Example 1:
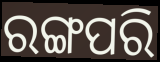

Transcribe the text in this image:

ରଙ୍ଗପରି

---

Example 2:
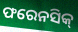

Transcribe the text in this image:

ଫରେନସିକ୍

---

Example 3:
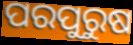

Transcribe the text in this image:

ପରପୁରୁଷ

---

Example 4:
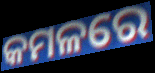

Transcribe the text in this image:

କମଳରେ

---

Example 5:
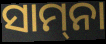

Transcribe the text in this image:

ସାମ୍‌ନା